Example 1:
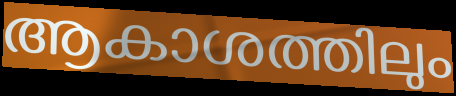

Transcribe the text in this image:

ആകാശത്തിലും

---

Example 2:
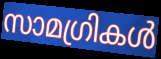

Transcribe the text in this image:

സാമഗ്രികൾ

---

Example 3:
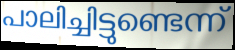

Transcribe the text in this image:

പാലിച്ചിട്ടുണ്ടെന്ന്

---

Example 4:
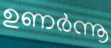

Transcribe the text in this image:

ഉണർന്നൂ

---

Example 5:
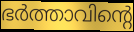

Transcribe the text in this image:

ഭർത്താവിന്റെ